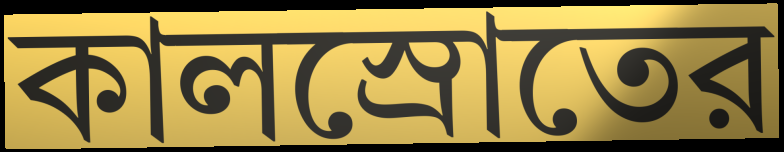
কালস্রোতের